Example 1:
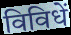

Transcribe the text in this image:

विविधें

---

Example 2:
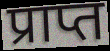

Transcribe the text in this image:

प्राप्‍त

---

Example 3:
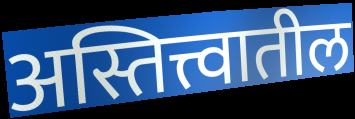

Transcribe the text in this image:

अस्तित्त्वातील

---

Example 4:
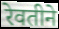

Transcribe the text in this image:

रेवतीने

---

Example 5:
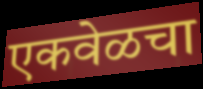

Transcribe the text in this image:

एकवेळचा